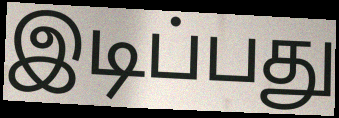
இடிப்பது